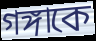
গঙ্গাকে